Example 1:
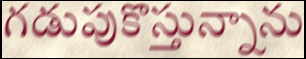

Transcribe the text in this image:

గడుపుకొస్తున్నాను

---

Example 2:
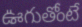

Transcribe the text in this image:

ఊగుతోంటే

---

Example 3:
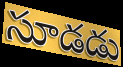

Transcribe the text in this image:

సూడడు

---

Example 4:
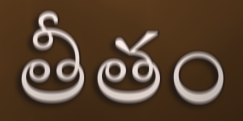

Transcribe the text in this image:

తీతం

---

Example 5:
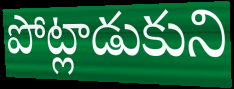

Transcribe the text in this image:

పోట్లాడుకుని